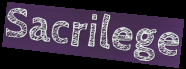
Sacrilege